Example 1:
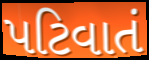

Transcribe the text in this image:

પટિવાતં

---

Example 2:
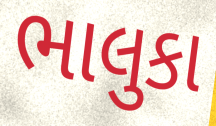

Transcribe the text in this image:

ભાલુકા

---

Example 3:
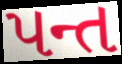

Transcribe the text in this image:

પન્ત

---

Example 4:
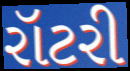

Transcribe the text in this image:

રૉટરી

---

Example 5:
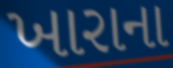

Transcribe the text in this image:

ખારાના